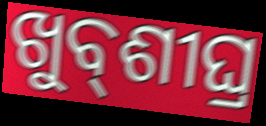
ଖୁବ୍‌ଶୀଘ୍ର